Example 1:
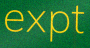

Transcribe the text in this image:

expt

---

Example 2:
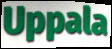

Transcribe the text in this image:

Uppala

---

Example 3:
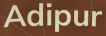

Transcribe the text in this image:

Adipur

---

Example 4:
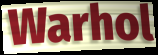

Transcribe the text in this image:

Warhol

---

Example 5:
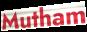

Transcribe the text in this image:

Mutham